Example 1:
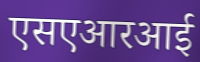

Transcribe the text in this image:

एसएआरआई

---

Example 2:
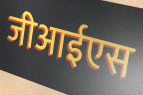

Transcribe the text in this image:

जीआईएस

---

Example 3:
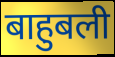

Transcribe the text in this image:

बाहुबली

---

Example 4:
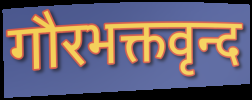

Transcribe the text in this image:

गौरभक्तवृन्द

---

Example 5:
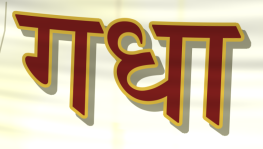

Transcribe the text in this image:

गधा